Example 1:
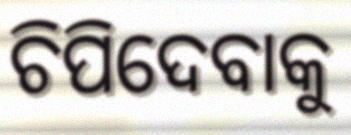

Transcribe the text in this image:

ଚିପିଦେବାକୁ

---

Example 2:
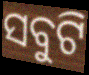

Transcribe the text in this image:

ସବୁଟି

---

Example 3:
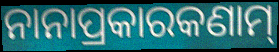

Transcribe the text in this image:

ନାନାପ୍ରକାରକଣାମ୍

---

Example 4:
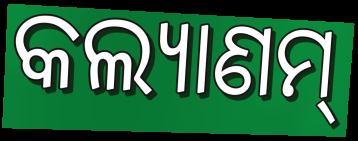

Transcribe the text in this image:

କଲ୍ୟାଣମ୍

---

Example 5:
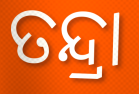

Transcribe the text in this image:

ତନ୍ଦ୍ରା